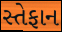
સ્તેફાન